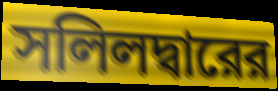
সলিলদ্বারের